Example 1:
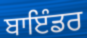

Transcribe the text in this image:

ਬਾਇੰਡਰ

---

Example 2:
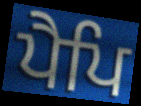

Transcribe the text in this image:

ਪੈਪਿ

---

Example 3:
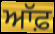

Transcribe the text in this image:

ਆੱਫ਼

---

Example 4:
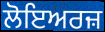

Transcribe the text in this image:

ਲੋਇਅਰਜ਼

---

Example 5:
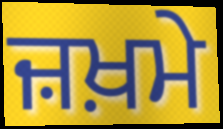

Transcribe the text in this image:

ਜ਼ਖ਼ਮੇ